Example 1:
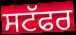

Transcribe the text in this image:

ਸਟੱਫਰ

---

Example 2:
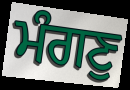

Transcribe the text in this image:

ਮੰਗਣੁ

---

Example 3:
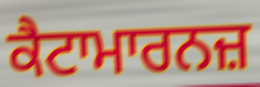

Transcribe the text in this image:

ਕੈਟਾਮਾਰਨਜ਼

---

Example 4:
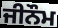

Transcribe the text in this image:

ਜੀਨੌਮ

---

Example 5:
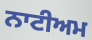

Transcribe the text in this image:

ਨਾਟੀਅਮ